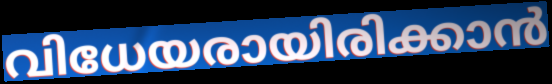
വിധേയരായിരിക്കാൻ